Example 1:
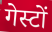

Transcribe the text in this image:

गेस्टों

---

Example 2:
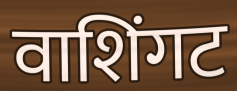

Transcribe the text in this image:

वाशिंगट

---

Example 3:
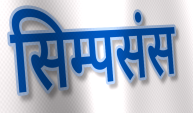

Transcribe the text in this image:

सिम्पसंस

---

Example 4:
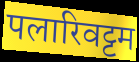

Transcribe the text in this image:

पलारिवट्टम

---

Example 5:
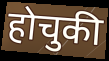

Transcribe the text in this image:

होचुकी